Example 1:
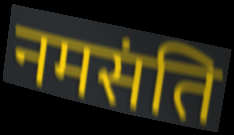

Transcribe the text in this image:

नमसंति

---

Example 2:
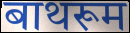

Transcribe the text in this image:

बाथरूम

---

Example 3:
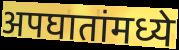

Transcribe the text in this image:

अपघातांमध्ये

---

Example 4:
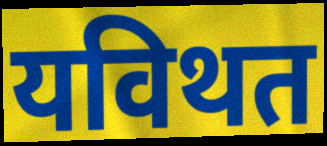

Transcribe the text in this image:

यविथत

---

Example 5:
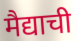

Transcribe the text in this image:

मैद्याची